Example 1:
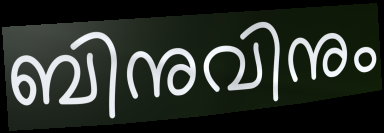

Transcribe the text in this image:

ബിനുവിനും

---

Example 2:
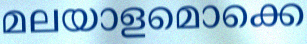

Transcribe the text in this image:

മലയാളമൊക്കെ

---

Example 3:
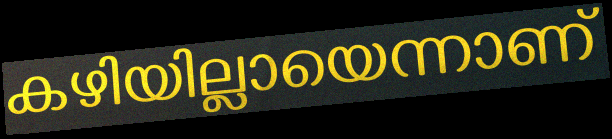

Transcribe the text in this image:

കഴിയില്ലായെന്നാണ്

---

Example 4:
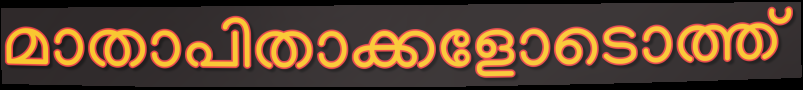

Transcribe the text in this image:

മാതാപിതാക്കളോടൊത്ത്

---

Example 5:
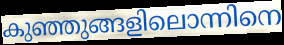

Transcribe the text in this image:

കുഞ്ഞുങ്ങളിലൊന്നിനെ